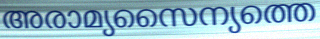
അരാമ്യസൈന്യത്തെ